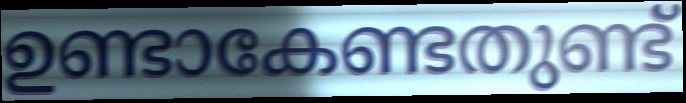
ഉണ്ടാകേണ്ടതുണ്ട്